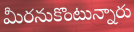
మీరనుకొంటున్నారు